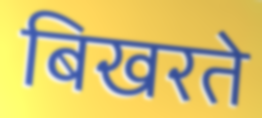
बिखरते